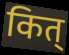
कित्